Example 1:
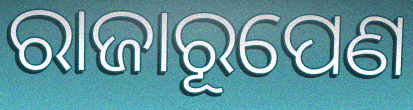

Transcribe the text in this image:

ରାଜାରୂପେଣ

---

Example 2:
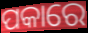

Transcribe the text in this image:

ପକାରେ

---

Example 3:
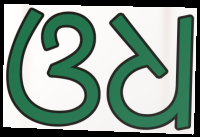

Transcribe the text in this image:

ଓଧ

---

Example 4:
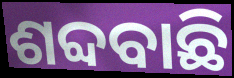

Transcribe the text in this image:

ଶବ୍ଦବାଛି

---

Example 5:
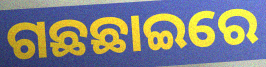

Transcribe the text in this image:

ଗଛଛାଇରେ